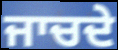
ਜਾਚਦੇ